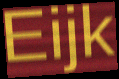
Eijk